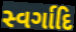
સ્વર્ગાદિ